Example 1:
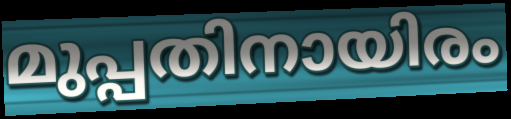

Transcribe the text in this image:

മുപ്പതിനായിരം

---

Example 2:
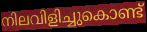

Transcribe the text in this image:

നിലവിളിച്ചുകൊണ്ട്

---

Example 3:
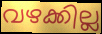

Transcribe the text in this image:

വഴക്കില്ല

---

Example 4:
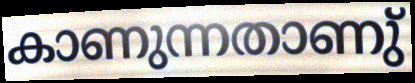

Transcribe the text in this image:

കാണുന്നതാണു്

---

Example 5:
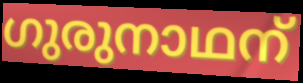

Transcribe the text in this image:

ഗുരുനാഥന്